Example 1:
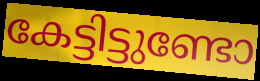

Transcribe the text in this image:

കേട്ടിട്ടുണ്ടോ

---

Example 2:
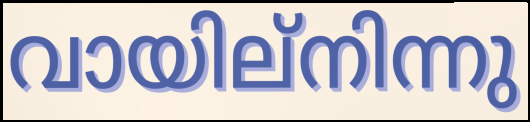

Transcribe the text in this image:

വായില്നിന്നു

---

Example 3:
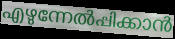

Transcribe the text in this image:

എഴുന്നേൽപ്പിക്കാൻ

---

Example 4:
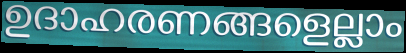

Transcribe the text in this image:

ഉദാഹരണങ്ങളെല്ലാം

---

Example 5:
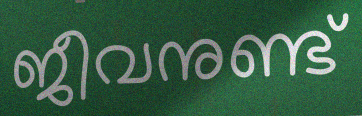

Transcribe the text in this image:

ജീവനുണ്ട്